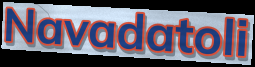
Navadatoli